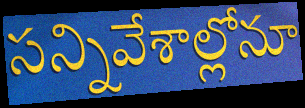
సన్నివేశాల్లోనూ